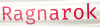
Ragnarok